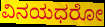
ವಿನಯಧರೋ